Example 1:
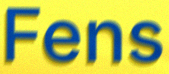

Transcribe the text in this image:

Fens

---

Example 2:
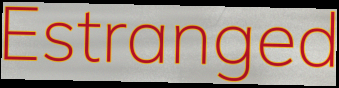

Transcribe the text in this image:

Estranged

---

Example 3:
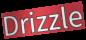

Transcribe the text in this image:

Drizzle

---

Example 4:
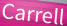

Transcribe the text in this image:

Carrell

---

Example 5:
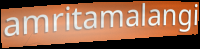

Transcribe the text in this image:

amritamalangi